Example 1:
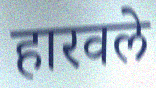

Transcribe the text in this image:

हारवले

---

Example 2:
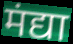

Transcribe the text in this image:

मंद्या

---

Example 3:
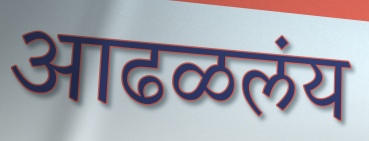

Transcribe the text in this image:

आढळलंय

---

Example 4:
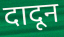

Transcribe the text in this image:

दादून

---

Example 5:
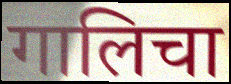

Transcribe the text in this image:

गालिचा